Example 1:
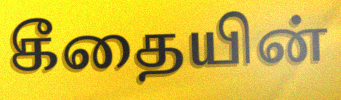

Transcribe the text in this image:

கீதையின்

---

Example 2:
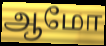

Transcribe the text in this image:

ஆமோ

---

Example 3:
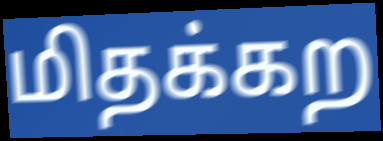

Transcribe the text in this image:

மிதக்கற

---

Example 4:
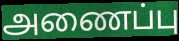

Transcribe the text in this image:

அணைப்பு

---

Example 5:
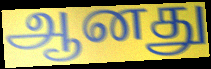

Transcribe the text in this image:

ஆனது